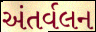
અંતર્વલન